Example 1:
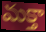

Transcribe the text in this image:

మక్తా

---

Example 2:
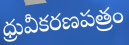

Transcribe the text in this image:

ధ్రువీకరణపత్రం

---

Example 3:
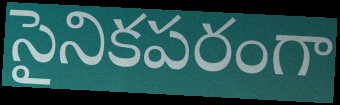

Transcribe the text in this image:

సైనికపరంగా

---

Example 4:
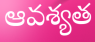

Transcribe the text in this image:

ఆవశ్యత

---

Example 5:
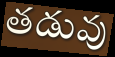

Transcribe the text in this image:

తడువు